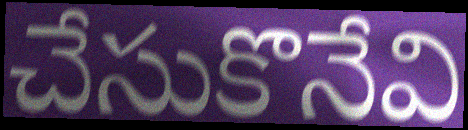
చేసుకొనేవి